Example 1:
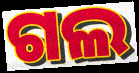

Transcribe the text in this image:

ଗଲ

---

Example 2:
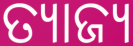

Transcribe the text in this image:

ତ୍ୟାଜ୍ୟ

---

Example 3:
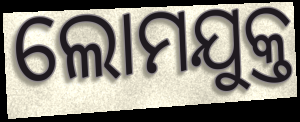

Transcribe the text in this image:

ଲୋମଯୁକ୍ତ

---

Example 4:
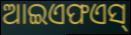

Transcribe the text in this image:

ଆଇଏଫଏସ୍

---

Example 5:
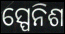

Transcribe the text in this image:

ସ୍ପେନିଶ